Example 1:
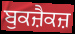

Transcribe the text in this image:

ਬੁਕਜ਼ੈਕਜ਼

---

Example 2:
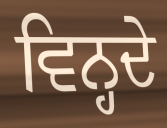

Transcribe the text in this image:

ਵਿਨ੍ਹਦੇ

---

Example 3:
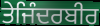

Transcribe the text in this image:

ਤੇਜਿੰਦਰਬੀਰ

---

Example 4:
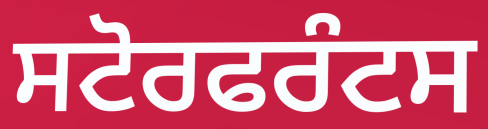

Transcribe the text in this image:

ਸਟੋਰਫਰੰਟਸ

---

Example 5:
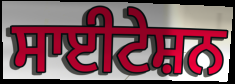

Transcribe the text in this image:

ਸਾਈਟੇਸ਼ਨ